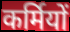
कर्मियों